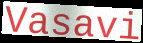
Vasavi